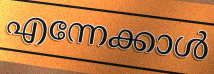
എന്നേക്കാൾ